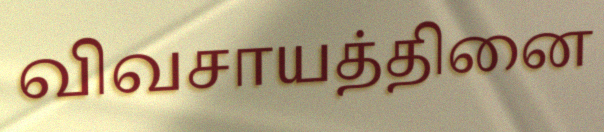
விவசாயத்தினை